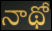
నాథో